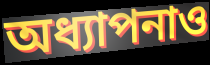
অধ্যাপনাও